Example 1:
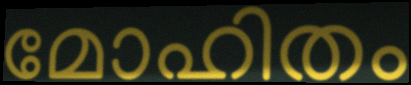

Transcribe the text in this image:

മോഹിതം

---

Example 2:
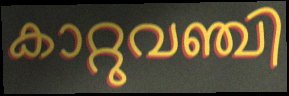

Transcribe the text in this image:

കാറ്റുവഞ്ചി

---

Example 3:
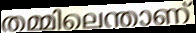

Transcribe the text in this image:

തമ്മിലെന്താണ്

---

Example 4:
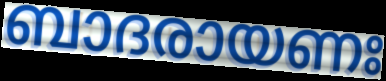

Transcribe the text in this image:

ബാദരായണഃ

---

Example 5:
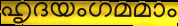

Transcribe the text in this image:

ഹൃദയംഗമമാം